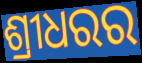
ଶ୍ରୀଧରର